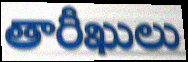
తారీఖులు